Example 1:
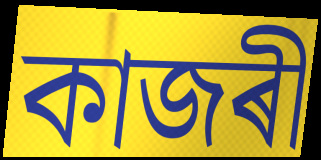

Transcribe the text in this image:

কাজৰী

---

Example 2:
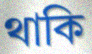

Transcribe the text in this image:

থাকি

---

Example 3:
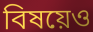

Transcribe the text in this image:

বিষয়েও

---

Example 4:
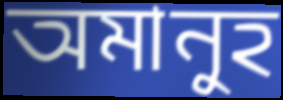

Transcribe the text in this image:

অমানুহ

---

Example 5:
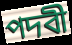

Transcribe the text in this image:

পদবী